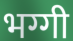
भग्गी